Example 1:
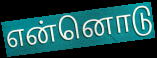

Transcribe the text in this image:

என்னொடு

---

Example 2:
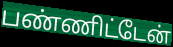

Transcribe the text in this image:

பண்ணிட்டேன்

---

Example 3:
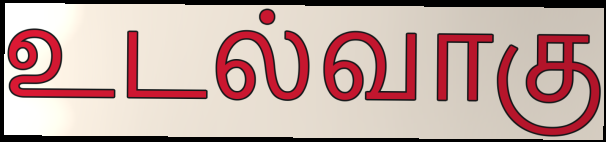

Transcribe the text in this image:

உடல்வாகு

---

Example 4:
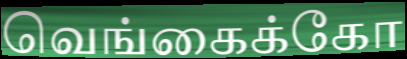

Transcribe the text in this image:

வெங்கைக்கோ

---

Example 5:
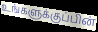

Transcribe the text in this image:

உங்களுக்குப்பின்